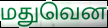
மதுவென